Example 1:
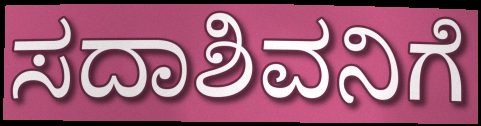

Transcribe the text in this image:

ಸದಾಶಿವನಿಗೆ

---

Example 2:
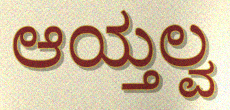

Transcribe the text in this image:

ಆಯ್ತಲ್ವ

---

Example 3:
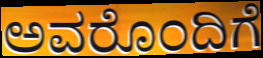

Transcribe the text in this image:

ಅವರೊಂದಿಗೆ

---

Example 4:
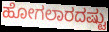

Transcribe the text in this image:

ಹೋಗಲಾರದಷ್ಟು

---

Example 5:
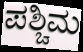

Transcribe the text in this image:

ಪಶ್ಚಿಮ